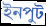
ইনপুট